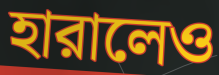
হারালেও